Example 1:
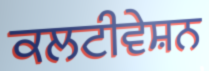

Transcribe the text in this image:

ਕਲਟੀਵੇਸ਼ਨ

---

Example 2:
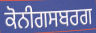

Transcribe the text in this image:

ਕੋਨੀਗਸਬਰਗ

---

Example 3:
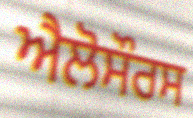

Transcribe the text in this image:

ਐਲੋਸੌਰਸ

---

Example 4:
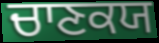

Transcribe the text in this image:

ਚਾਣਕਯ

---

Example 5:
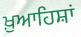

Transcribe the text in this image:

ਖ਼ੁਆਹਿਸ਼ਾਂ